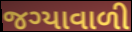
જગ્યાવાળી